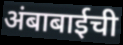
अंबाबाईची